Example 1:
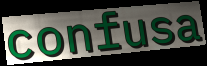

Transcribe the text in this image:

confusa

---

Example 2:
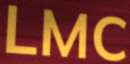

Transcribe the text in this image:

LMC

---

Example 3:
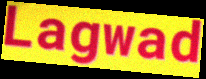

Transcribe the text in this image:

Lagwad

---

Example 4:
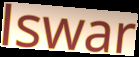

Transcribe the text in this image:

Iswar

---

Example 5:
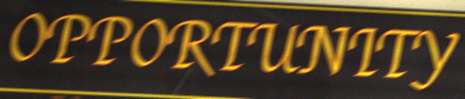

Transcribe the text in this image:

OPPORTUNITY